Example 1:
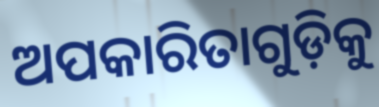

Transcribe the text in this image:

ଅପକାରିତାଗୁଡ଼ିକୁ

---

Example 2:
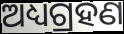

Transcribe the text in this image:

ଅଧ୍ୟଗ୍ରହଣ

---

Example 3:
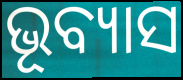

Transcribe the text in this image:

ଭୂବ୍ୟାସ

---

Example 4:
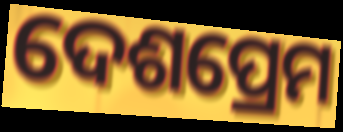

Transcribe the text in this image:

ଦେଶପ୍ରେମ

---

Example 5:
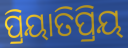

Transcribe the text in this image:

ପ୍ରିୟାତିପ୍ରିୟ